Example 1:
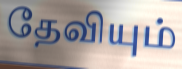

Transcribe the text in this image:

தேவியும்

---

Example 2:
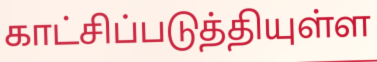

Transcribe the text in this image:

காட்சிப்படுத்தியுள்ள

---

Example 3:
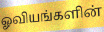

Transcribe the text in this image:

ஓவியங்களின்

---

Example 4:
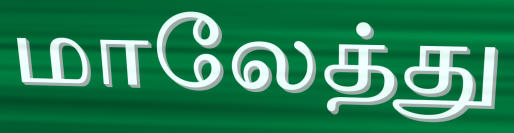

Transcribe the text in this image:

மாலேத்து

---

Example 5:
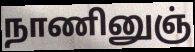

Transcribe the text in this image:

நாணினுஞ்